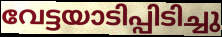
വേട്ടയാടിപ്പിടിച്ചു